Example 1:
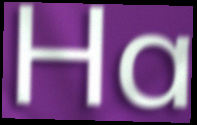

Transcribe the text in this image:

Ha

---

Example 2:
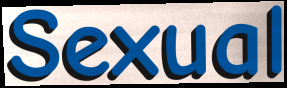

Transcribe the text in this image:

Sexual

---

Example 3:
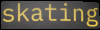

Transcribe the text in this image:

skating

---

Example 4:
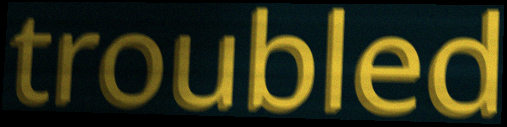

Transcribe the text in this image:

troubled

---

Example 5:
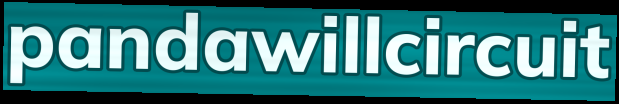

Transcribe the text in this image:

pandawillcircuit